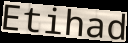
Etihad